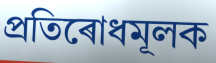
প্ৰতিৰোধমূলক